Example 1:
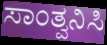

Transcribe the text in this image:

ಸಾಂತ್ವನಿಸಿ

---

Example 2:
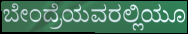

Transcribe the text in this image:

ಬೇಂದ್ರೆಯವರಲ್ಲಿಯೂ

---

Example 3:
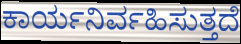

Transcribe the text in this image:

ಕಾರ್ಯನಿರ್ವಹಿಸುತ್ತದೆ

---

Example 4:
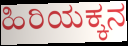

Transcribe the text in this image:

ಹಿರಿಯಕ್ಕನ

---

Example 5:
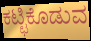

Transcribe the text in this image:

ಕಟ್ಟಿಕೊಡುವ